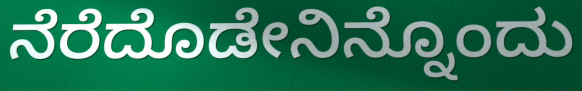
ನೆರೆದೊಡೇನಿನ್ನೊಂದು